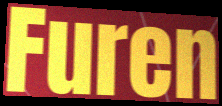
Furen